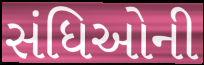
સંધિઓની